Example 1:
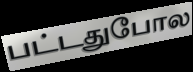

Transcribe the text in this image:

பட்டதுபோல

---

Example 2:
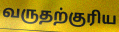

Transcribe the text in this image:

வருதற்குரிய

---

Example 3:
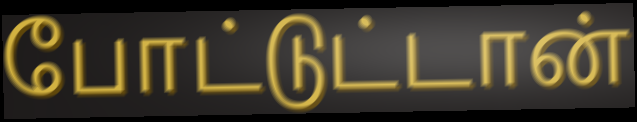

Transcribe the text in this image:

போட்டுட்டான்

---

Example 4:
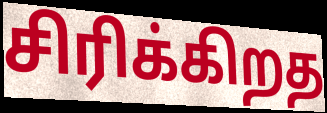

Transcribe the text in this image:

சிரிக்கிறத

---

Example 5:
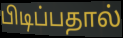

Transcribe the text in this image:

பிடிப்பதால்